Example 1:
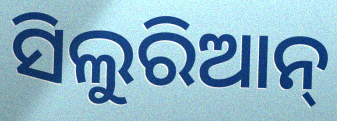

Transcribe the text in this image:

ସିଲୁରିଆନ୍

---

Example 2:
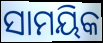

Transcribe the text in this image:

ସାମୟିକ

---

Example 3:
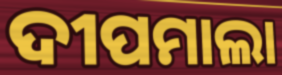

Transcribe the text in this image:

ଦୀପମାଲା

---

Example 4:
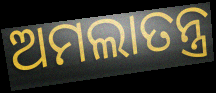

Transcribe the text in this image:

ଅମଲାତନ୍ତ୍ର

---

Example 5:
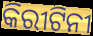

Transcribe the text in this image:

କିରୀଟିନୀ